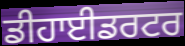
ਡੀਹਾਈਡਰਟਰ